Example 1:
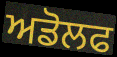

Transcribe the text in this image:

ਅਡੋਲਫ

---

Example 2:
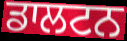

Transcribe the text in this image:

ਡਾਲਟਨ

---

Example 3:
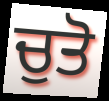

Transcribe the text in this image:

ਚੁਤੋ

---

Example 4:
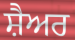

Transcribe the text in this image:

ਸ਼ੈਅਰ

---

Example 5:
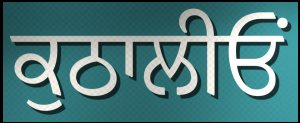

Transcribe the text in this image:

ਕੁਠਾਲੀਓਂ